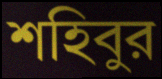
শহিবুর